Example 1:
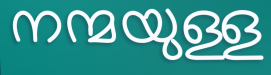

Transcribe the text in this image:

നന്മയുള്ള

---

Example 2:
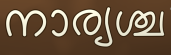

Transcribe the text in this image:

നാര്യശ്ച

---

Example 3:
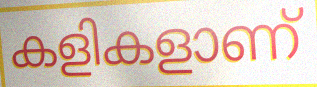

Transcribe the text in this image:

കളികളാണ്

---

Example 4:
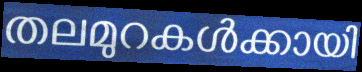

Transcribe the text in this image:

തലമുറകൾക്കായി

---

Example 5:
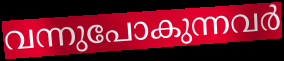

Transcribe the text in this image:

വന്നുപോകുന്നവർ